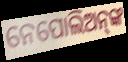
ନେପୋଲିଅନ୍‌ଙ୍କ